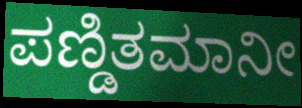
ಪಣ್ಡಿತಮಾನೀ